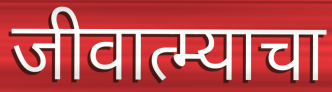
जीवात्म्याचा